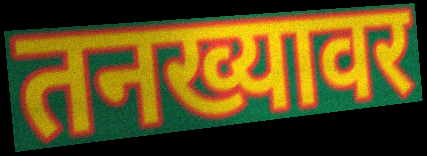
तनख्यावर